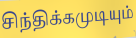
சிந்திக்கமுடியும்